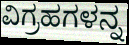
ವಿಗ್ರಹಗಳನ್ನ